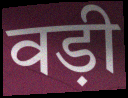
वड़ी